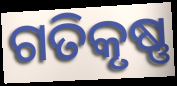
ଗତିକୃଷ୍ଣ